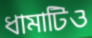
ধামাটিও